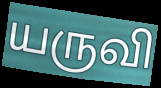
யருவி